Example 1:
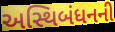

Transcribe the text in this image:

અસ્થિબંધનની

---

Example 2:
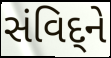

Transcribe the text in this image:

સંવિદ્‌ને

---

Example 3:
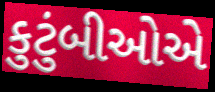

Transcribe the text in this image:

કુટુંબીઓએ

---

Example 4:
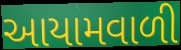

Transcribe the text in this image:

આયામવાળી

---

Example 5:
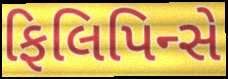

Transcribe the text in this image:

ફિલિપિન્સે